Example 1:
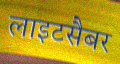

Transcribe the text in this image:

लाइटसैबर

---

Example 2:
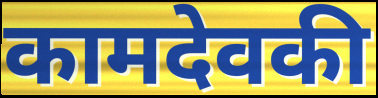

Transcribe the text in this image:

कामदेवकी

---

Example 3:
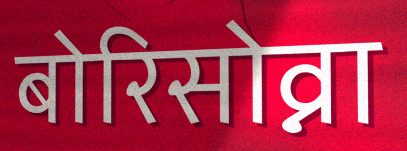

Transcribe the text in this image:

बोरिसोव्ना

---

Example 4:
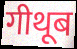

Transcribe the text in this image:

गीथूब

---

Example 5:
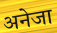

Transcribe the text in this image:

अनेजा